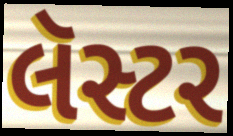
લૅસ્ટર